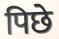
पिछे